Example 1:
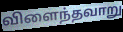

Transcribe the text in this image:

விளைந்தவாறு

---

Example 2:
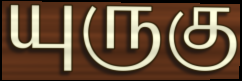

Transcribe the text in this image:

யுருகு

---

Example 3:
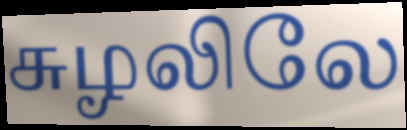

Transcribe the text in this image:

சுழலிலே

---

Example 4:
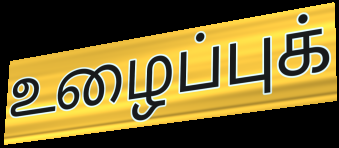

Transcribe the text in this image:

உழைப்புக்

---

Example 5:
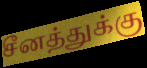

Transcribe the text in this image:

சீனத்துக்கு